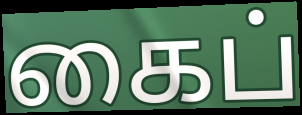
கைப்